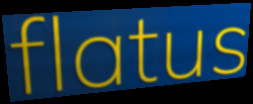
flatus